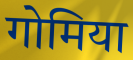
गोमिया